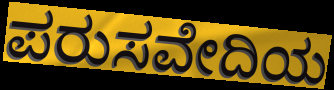
ಪರುಸವೇದಿಯ